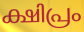
ക്ഷിപ്രം